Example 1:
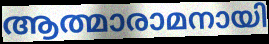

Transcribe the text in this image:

ആത്മാരാമനായി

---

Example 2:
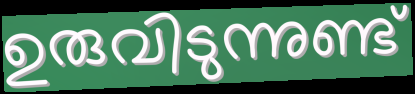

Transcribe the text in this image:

ഉരുവിടുന്നുണ്ട്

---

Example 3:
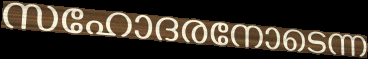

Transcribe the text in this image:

സഹോദരനോടെന്ന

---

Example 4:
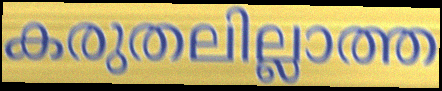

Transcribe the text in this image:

കരുതലില്ലാത്ത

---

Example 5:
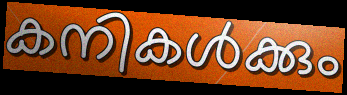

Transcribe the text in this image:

കനികൾക്കും